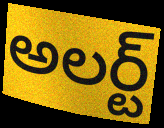
అలర్ట్